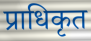
प्राधिकृत